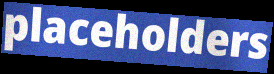
placeholders